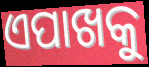
ଏପାଖକୁ